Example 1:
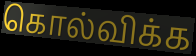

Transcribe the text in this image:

கொல்விக்க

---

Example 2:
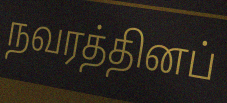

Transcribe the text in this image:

நவரத்தினப்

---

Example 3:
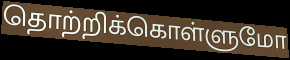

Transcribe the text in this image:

தொற்றிக்கொள்ளுமோ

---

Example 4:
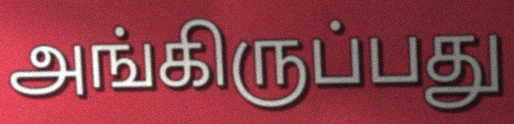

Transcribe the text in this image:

அங்கிருப்பது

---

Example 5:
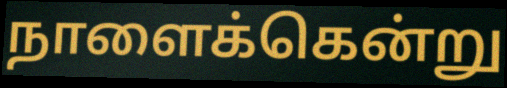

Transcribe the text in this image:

நாளைக்கென்று